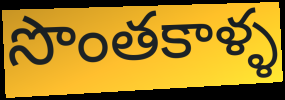
సొంతకాళ్ళ